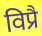
विप्रै